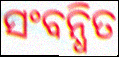
ସଂବନ୍ଧିତ